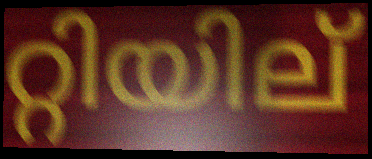
റ്റിയില്